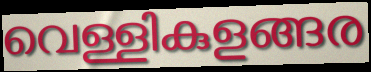
വെള്ളികുളങ്ങര